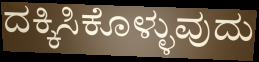
ದಕ್ಕಿಸಿಕೊಳ್ಳುವುದು